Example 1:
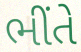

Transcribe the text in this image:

ભીંતે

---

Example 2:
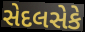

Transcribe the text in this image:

સેદલસેકે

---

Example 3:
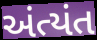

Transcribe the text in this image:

અંત્યંત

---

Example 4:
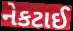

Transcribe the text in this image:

નેકટાઈ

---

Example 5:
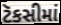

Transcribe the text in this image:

ટૅકસીમાં